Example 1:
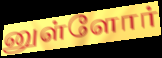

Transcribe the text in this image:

னுள்ளோர்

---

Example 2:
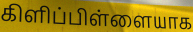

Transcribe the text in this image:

கிளிப்பிள்ளையாக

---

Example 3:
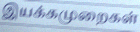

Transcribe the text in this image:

இயக்கமுறைகள்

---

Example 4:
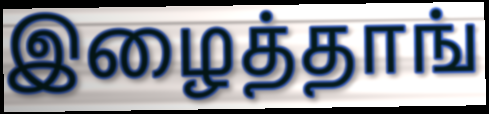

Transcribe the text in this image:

இழைத்தாங்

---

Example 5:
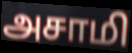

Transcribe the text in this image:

அசாமி